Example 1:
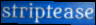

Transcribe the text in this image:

striptease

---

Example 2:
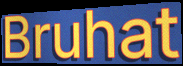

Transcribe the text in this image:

Bruhat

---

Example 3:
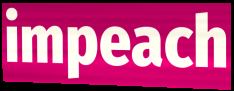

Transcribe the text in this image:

impeach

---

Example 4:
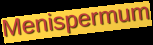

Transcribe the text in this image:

Menispermum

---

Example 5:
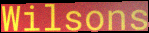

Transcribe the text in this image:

Wilsons